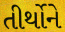
તીર્થોને